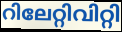
റിലേറ്റിവിറ്റി